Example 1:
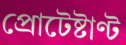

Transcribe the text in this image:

প্রোটেষ্টাণ্ট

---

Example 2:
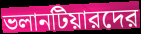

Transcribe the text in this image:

ভলানটিয়ারদের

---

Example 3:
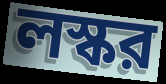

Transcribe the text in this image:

লস্কর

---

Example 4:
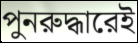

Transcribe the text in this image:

পুনরুদ্ধারেই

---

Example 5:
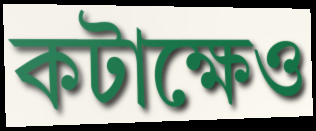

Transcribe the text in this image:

কটাক্ষেও